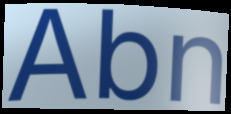
Abn